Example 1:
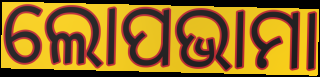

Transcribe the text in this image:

ଲୋପଭାମା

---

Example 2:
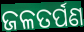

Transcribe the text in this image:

ଜଳତର୍ପଣ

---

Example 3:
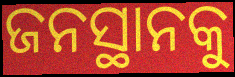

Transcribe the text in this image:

ଜନସ୍ଥାନକୁ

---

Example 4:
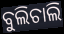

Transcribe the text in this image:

ବୁଲିଚାଲି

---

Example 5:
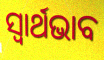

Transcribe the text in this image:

ସ୍ଵାର୍ଥଭାବ